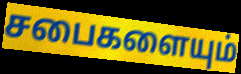
சபைகளையும்